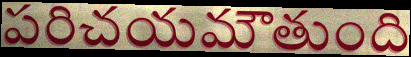
పరిచయమౌతుంది